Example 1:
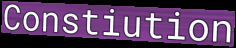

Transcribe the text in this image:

Constiution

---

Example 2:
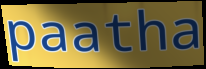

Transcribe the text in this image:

paatha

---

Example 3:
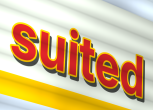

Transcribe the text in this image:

suited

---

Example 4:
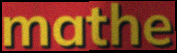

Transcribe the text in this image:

mathe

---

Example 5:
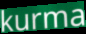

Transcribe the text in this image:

kurma